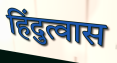
हिंदुत्वास